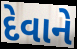
દેવાને